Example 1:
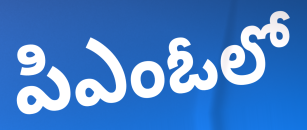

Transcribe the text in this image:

పిఎంఓలో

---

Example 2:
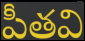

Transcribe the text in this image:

పీతవి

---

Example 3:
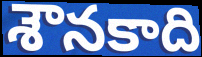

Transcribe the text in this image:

శౌనకాది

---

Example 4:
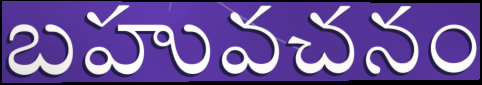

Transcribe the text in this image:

బహువచనం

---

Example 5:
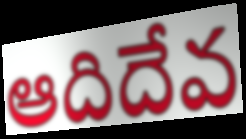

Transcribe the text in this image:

ఆదిదేవ